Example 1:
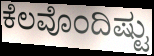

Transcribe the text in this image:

ಕೆಲವೊಂದಿಷ್ಟು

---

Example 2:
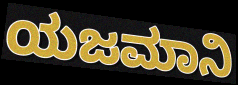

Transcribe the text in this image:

ಯಜಮಾನಿ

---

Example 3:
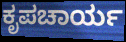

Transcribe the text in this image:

ಕೃಪಚಾರ್ಯ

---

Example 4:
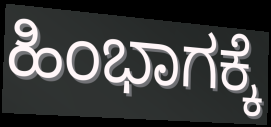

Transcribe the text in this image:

ಹಿಂಭಾಗಕ್ಕೆ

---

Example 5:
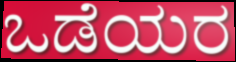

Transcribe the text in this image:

ಒಡೆಯರ